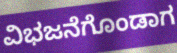
ವಿಭಜನೆಗೊಂಡಾಗ